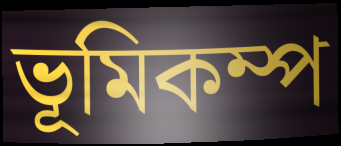
ভূমিকম্প